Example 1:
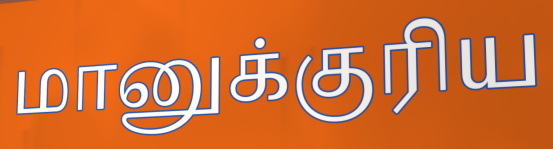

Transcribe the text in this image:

மானுக்குரிய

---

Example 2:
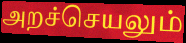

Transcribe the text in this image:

அறச்செயலும்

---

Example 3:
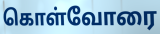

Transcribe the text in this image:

கொள்வோரை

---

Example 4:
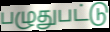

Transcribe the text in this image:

பழுதுபட்டு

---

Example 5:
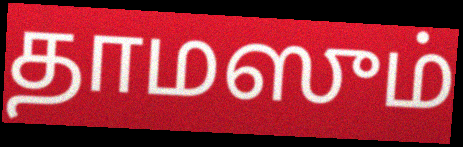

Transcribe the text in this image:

தாமஸும்